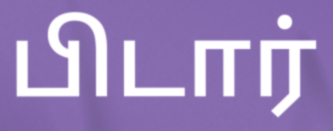
பிடார்